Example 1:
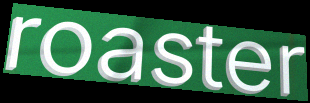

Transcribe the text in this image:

roaster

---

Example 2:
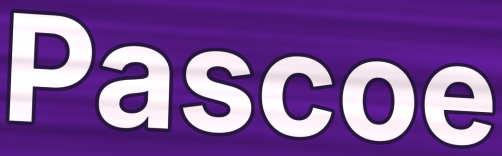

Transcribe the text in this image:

Pascoe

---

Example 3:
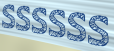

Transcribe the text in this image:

SSSSSS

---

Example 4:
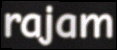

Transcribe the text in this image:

rajam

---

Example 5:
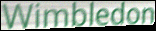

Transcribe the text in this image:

Wimbledon